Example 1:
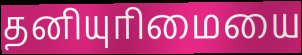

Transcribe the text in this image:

தனியுரிமையை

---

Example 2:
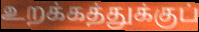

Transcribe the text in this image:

உறக்கத்துக்குப்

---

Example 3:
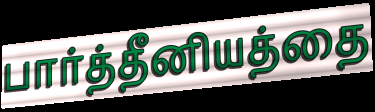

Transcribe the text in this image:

பார்த்தீனியத்தை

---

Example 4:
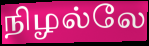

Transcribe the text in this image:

நிழல்லே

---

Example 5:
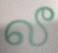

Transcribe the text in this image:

லீ